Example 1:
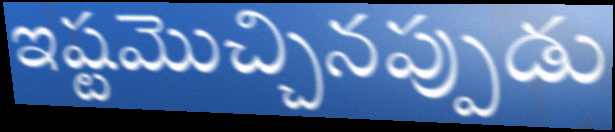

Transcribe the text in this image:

ఇష్టమొచ్చినప్పుడు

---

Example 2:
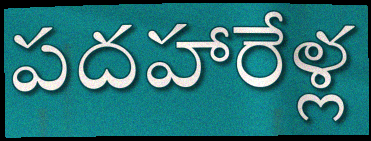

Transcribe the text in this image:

పదహారేళ్ల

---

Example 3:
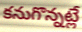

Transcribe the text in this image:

కనుగొన్నట్లే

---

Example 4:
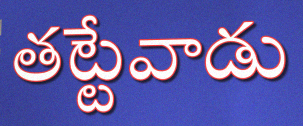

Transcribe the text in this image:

తట్టేవాడు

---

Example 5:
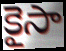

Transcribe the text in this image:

కైసా